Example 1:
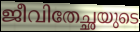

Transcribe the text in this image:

ജീവിതേച്ഛയുടെ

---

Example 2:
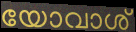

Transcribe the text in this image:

യോവാശ്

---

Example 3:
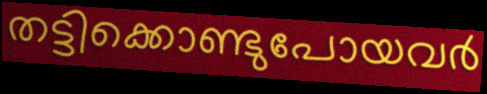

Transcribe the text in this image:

തട്ടിക്കൊണ്ടുപോയവർ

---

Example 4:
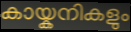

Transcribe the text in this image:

കായ്കനികളും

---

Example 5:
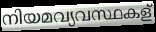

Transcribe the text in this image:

നിയമവ്യവസ്ഥകള്